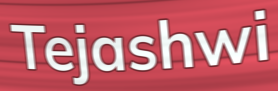
Tejashwi